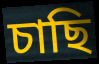
চাছি